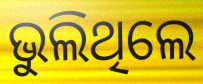
ଭୁଲିଥିଲେ